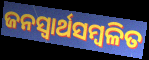
ଜନସ୍ବାର୍ଥସମ୍ବଳିତ